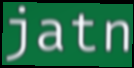
jatn